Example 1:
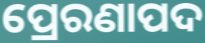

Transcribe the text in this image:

ପ୍ରେରଣାପଦ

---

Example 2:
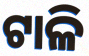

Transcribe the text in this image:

ଟାଳି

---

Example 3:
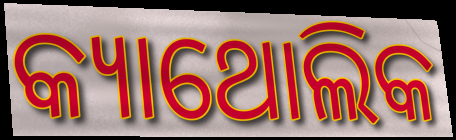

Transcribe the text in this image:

କ୍ୟାଥୋଲିକ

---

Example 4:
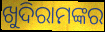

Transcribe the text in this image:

ଖୁଦିରାମଙ୍କର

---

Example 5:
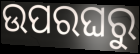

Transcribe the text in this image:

ଉପରଘରୁ